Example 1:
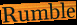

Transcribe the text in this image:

Rumble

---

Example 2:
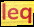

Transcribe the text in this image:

leq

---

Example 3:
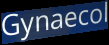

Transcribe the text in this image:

Gynaecol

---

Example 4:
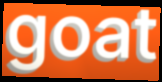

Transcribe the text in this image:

goat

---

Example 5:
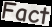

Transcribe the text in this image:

Fact